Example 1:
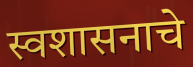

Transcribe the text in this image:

स्वशासनाचे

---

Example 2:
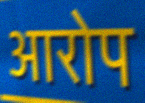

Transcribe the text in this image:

आरोप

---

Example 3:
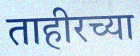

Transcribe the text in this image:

ताहीरच्या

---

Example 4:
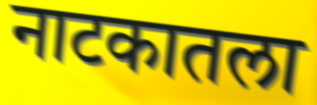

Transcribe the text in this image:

नाटकातला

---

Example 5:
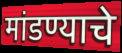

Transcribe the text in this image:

मांडण्याचे